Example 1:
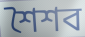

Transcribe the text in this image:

শৈশব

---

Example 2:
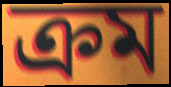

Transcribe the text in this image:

ক্ৰম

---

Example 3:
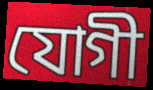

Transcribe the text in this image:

যোগী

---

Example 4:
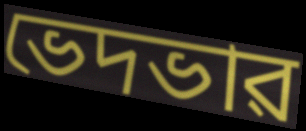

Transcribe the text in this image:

ভেদভাৱ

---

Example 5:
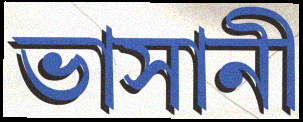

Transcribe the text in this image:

ভাসানী